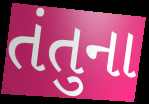
તંતુના